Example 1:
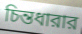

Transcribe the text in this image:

চিন্তধারার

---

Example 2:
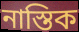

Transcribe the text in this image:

নাস্তিক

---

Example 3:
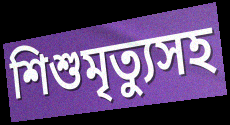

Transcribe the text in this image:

শিশুমৃত্যুসহ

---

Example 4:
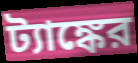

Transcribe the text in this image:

ট্যাঙ্কের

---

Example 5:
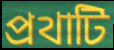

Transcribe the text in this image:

প্রথাটি